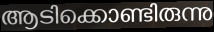
ആടിക്കൊണ്ടിരുന്നു